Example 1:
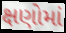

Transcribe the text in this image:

ક્ષણોમાં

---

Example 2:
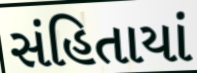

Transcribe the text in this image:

સંહિતાયાં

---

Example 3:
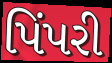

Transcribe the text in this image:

પિંપરી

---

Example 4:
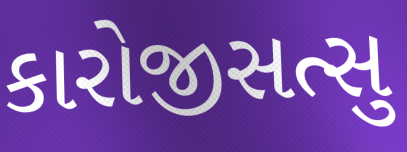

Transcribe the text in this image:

કારોજીસત્સુ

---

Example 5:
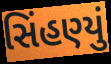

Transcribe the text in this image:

સિંહણ્યું